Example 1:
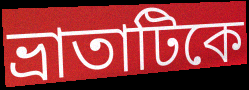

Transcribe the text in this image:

ভ্রাতাটিকে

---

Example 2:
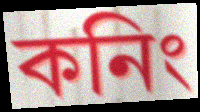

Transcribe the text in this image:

কনিং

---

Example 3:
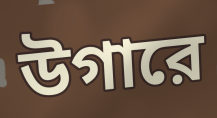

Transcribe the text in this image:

উগারে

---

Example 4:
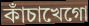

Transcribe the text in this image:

কাঁচাখেগো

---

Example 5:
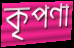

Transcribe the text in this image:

কৃপণা